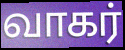
வாகர்